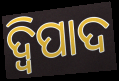
ଦ୍ୱିପାଦ